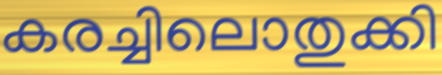
കരച്ചിലൊതുക്കി